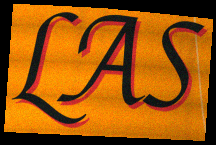
LAS